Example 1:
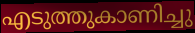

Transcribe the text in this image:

എടുത്തുകാണിച്ചു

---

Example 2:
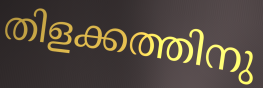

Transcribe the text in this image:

തിളക്കത്തിനു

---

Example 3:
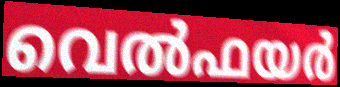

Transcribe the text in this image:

വെൽഫയർ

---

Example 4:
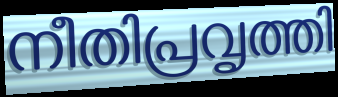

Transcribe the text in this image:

നീതിപ്രവൃത്തി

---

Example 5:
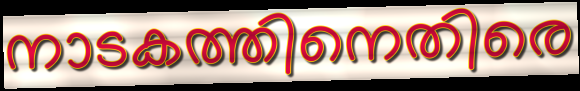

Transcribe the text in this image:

നാടകത്തിനെതിരെ